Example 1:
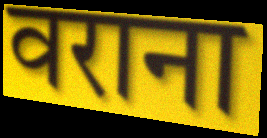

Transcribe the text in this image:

वराना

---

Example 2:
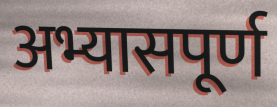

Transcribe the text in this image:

अभ्यासपूर्ण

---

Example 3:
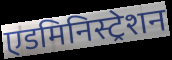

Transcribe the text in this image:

एडमिनिस्ट्रेशन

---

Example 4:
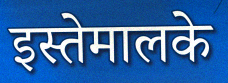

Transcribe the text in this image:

इस्तेमालके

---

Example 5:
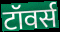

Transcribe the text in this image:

टॉवर्स